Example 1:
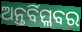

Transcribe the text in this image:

ଅନ୍ତର୍ବିପ୍ଳବର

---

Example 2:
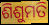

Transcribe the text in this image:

ଶିଶୁମତି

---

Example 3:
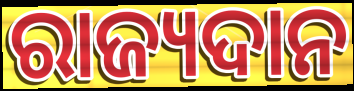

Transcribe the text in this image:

ରାଜ୍ୟଦାନ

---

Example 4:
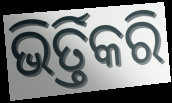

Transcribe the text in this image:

ଭିର୍ତ୍ତିକରି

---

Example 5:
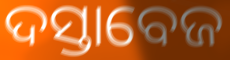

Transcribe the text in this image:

ଦସ୍ତାବେଜ